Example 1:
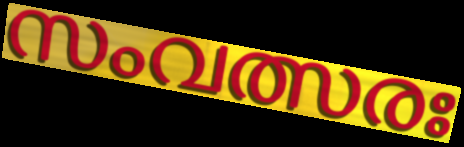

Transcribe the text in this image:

സംവത്സരഃ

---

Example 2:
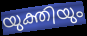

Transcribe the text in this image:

യുക്തിയും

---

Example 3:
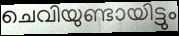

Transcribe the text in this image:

ചെവിയുണ്ടായിട്ടും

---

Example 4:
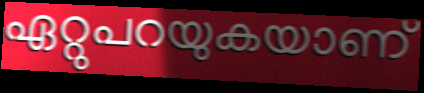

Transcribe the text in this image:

ഏറ്റുപറയുകയാണ്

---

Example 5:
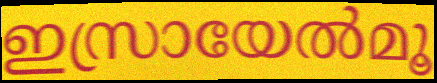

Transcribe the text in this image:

ഇസ്രായേൽമൂ